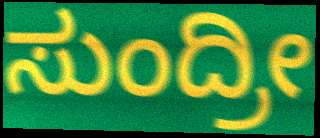
ಸುಂದ್ರೀ